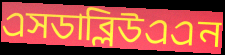
এসডাব্লিউএএন